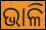
ଭାଳି